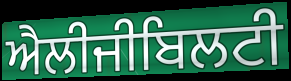
ਐਲੀਜੀਬਿਲਟੀ